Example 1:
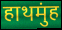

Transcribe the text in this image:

हाथमुंह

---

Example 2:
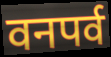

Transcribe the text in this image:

वनपर्व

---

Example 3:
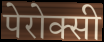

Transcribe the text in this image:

पेरोक्सी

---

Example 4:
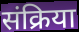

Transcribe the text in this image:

संक्रिया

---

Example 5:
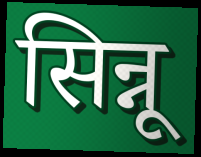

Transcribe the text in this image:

सिन्नू